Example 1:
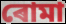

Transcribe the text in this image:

ৰোমা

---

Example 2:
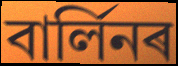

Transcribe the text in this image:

বাৰ্লিনৰ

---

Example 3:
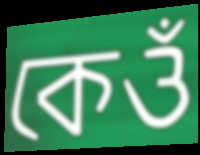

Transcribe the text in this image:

কেওঁ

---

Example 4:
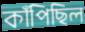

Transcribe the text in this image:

কাঁপিছিল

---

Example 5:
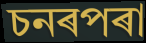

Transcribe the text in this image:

চনৰপৰা